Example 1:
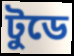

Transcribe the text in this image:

টুডে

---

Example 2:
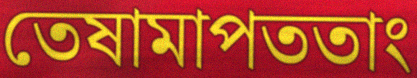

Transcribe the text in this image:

তেষামাপততাং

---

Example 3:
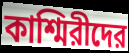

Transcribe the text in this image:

কাশ্মিরীদের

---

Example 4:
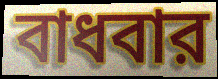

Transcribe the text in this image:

বাধবার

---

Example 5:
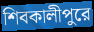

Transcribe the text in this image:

শিবকালীপুরে